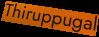
Thiruppugal